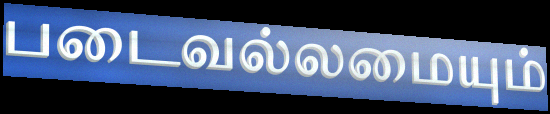
படைவல்லமையும்